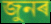
জুনৰ